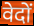
वेदों